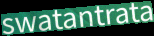
swatantrata